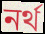
নৰ্থ